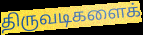
திருவடிகளைக்